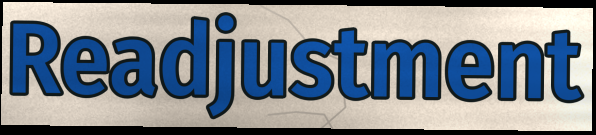
Readjustment